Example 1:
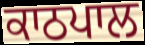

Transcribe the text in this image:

ਕਾਠਪਾਲ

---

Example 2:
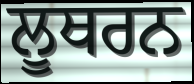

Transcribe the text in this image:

ਲੂਥਰਨ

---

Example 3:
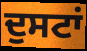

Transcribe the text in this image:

ਦੁਸਟਾਂ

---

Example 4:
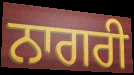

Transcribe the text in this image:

ਨਾਗਰੀ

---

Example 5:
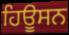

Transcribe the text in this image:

ਹਿਊਸਨ